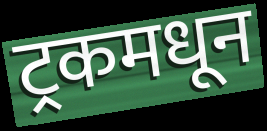
ट्रकमधून